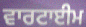
ਵਾਰਟਾਈਮ